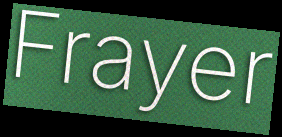
Frayer